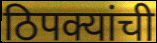
ठिपक्यांची